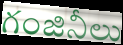
గంజినీలు